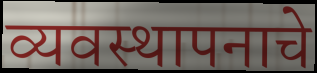
व्यवस्थापनाचे